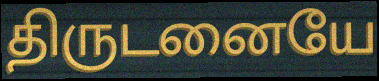
திருடனையே